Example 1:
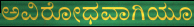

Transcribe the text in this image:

ಅವಿರೋಧವಾಗಿಯೂ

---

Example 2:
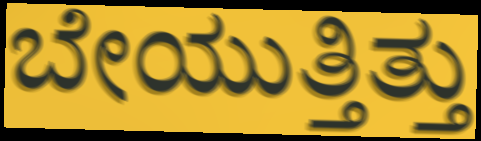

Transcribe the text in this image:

ಬೇಯುತ್ತಿತ್ತು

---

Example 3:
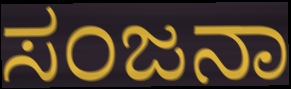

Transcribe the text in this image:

ಸಂಜನಾ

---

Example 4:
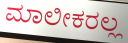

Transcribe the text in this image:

ಮಾಲೀಕರಲ್ಲ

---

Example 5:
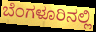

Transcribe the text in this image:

ಬೆಂಗಳೂರಿನಲ್ಲಿ